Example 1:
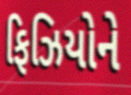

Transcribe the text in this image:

ફિઝિયોને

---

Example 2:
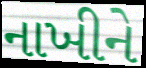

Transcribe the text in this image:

નાખીને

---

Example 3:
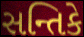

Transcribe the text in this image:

સન્તિકે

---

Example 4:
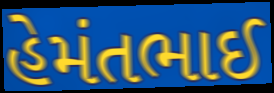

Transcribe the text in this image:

હેમંતભાઈ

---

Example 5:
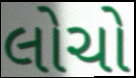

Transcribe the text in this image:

લોચો